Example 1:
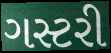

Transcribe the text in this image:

ગસ્ટરી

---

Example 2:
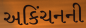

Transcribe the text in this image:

અકિંચનની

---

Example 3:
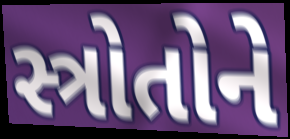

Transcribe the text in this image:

સ્ત્રોતોને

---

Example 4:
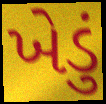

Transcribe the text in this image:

ખેડું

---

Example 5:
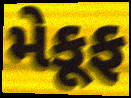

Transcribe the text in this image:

મેકૂફ